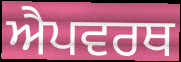
ਐਪਵਰਥ